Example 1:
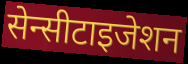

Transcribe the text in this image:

सेन्सीटाइजेशन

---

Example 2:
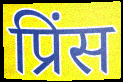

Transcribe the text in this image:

प्रिंस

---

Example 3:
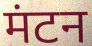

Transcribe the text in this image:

मंटन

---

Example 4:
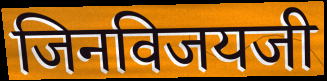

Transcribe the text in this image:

जिनविजयजी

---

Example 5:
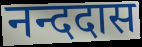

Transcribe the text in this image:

नन्ददास